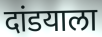
दांडयाला